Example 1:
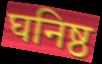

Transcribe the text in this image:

घनिष्ठ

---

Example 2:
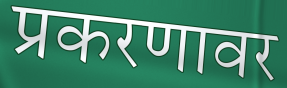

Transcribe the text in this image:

प्रकरणावर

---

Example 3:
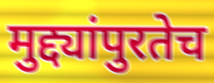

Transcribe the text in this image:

मुद्द्यांपुरतेच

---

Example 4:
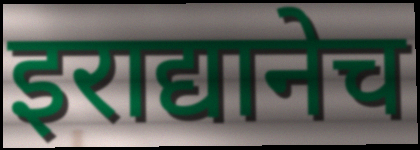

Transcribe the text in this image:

इराद्यानेच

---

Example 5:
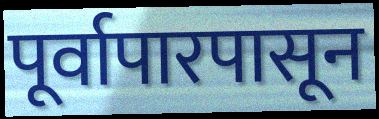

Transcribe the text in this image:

पूर्वापारपासून